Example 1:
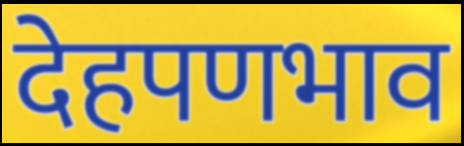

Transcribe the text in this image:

देहपणभाव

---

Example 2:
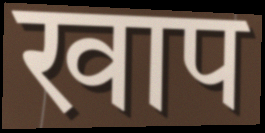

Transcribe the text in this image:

खाप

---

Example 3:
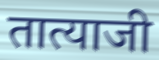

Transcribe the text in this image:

तात्याजी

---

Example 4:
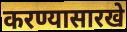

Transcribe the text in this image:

करण्यासारखे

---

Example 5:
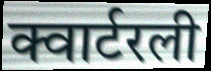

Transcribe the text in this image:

क्वार्टरली